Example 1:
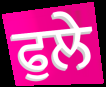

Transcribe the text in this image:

ਫੁਲੇ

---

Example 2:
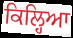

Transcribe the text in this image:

ਕਿਲ੍ਹਿਆ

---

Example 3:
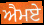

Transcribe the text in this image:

ਐਮਏ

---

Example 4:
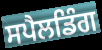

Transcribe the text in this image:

ਸਪੈਲਡਿੰਗ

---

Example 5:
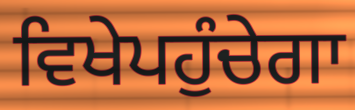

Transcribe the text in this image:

ਵਿਖੇਪਹੁੰਚੇਗਾ